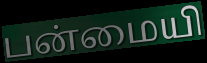
பன்மையி